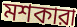
মশকারা